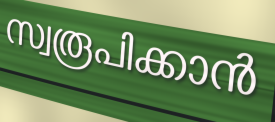
സ്വരൂപിക്കാൻ